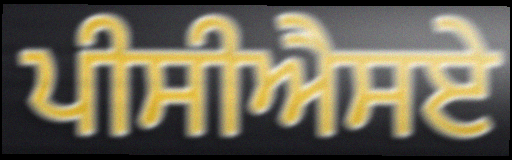
ਪੀਸੀਐਸਏ